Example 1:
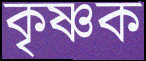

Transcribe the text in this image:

কৃষ্ণক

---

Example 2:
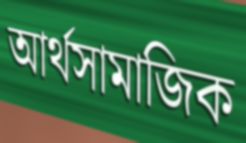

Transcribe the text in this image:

আৰ্থসামাজিক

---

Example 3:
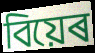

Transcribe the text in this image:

বিয়েৰ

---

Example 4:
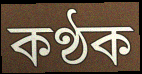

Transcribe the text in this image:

কণ্ঠক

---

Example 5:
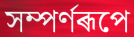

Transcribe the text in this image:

সম্পৰ্ণৰূপে